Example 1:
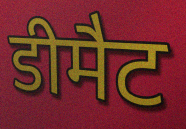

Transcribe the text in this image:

डीमैट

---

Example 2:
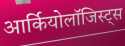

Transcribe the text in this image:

आर्कियोलॉजिस्ट्स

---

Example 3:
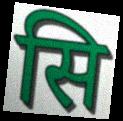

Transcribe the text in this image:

सि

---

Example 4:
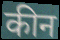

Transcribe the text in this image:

कीन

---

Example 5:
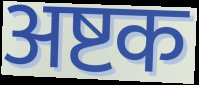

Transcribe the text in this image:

अष्टक